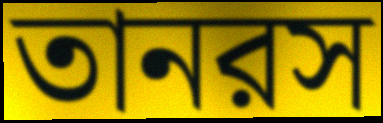
তানরস